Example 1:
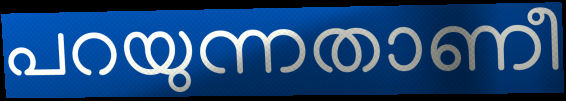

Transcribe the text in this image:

പറയുന്നതാണീ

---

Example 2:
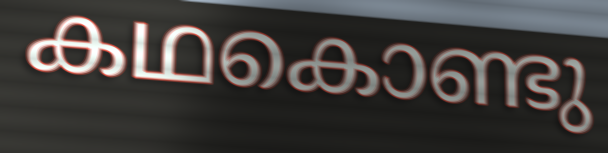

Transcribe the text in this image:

കഥകൊണ്ടു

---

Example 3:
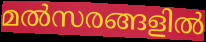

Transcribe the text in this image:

മൽസരങ്ങളിൽ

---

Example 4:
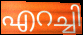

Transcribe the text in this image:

എറച്ചി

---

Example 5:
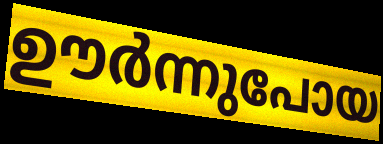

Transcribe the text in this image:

ഊർന്നുപോയ